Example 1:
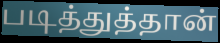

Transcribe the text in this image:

படித்துத்தான்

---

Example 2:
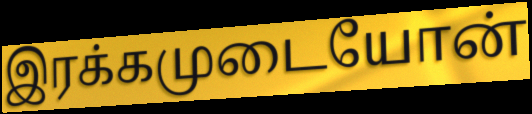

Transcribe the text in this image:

இரக்கமுடையோன்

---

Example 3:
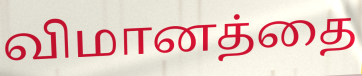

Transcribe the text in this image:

விமானத்தை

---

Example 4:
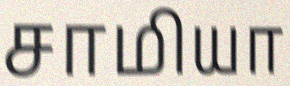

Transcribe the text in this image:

சாமியா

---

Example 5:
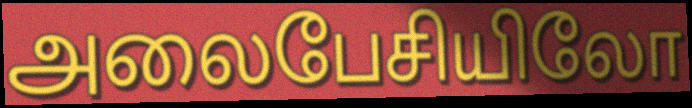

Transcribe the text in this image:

அலைபேசியிலோ